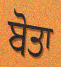
ਬੋਤਾ